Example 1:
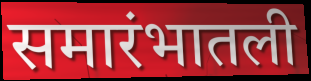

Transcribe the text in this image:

समारंभातली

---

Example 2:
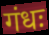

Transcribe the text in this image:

गंधः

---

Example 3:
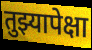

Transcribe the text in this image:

तुझ्यापेक्षा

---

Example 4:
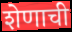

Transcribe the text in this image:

शेणाची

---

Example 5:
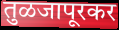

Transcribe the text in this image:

तुळजापूरकर